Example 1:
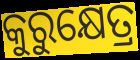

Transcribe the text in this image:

କୁରୁକ୍ଷେତ୍ର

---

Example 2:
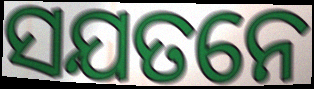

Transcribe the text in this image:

ସଯତନେ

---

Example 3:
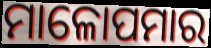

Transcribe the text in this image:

ମାଳୋପମାର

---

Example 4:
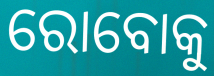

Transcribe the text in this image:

ରୋବୋକୁ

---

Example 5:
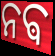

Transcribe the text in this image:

ନଵ